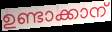
ഉണ്ടാക്കാന്